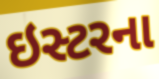
ઇસ્ટરના